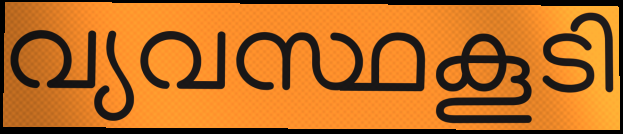
വ്യവസ്ഥകൂടി